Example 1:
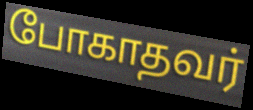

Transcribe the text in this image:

போகாதவர்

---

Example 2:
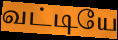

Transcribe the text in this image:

வட்டியே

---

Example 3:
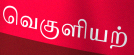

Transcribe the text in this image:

வெகுளியற்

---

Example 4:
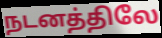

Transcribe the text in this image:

நடனத்திலே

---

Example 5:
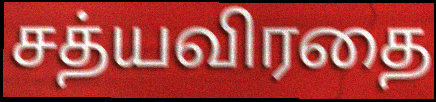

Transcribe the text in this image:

சத்யவிரதை